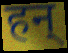
हन्